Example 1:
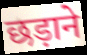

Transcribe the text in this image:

छड़ाने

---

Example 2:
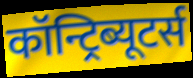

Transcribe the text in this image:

कॉन्ट्रिब्यूटर्स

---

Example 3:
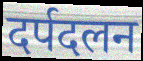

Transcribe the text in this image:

दर्पदलन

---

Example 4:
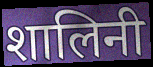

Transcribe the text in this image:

शालिनी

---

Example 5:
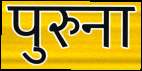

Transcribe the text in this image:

पुरुना